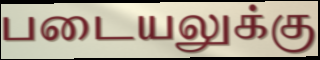
படையலுக்கு